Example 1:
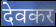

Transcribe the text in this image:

देवकर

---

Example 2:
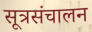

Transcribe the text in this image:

सूत्रसंचालन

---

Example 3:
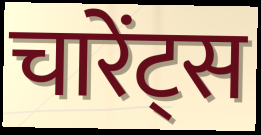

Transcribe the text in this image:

चारेंट्स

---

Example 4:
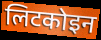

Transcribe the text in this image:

लिटकोइन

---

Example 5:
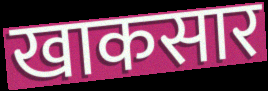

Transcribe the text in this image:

खाकसार